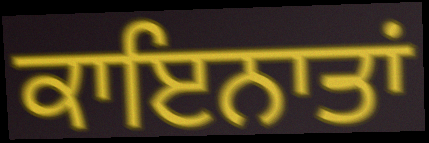
ਕਾਇਨਾਤਾਂ